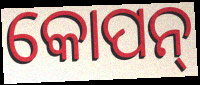
କୋପନ୍